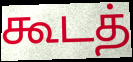
கூடத்